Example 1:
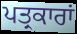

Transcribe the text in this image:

ਪਤ੍ਰਕਾਰਾਂ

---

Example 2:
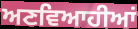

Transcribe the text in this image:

ਅਣਵਿਆਹੀਆਂ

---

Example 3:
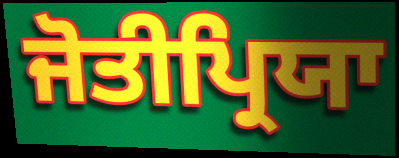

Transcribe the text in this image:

ਜੋਤੀਪ੍ਰਿਯਾ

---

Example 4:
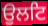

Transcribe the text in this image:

ਉਲਟਿ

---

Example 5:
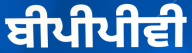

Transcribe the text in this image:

ਬੀਪੀਪੀਵੀ